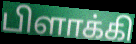
பிளாக்கி